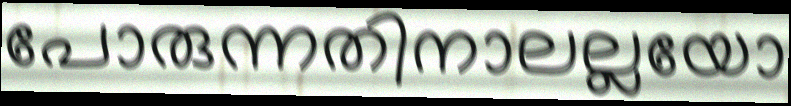
പോരുന്നതിനാലല്ലയോ